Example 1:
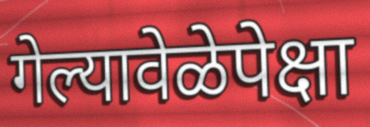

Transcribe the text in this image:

गेल्यावेळेपेक्षा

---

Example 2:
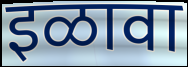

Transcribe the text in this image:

इळावा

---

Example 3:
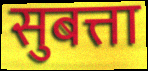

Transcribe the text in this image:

सुबत्ता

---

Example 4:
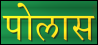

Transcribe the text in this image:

पोलास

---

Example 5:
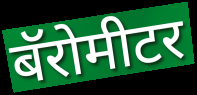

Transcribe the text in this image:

बॅरोमीटर